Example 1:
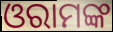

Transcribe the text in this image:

ଓରାମଙ୍କ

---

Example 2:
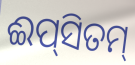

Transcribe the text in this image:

ଈପ୍‌ସିତମ୍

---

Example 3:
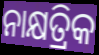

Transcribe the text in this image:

ନାକ୍ଷତ୍ରିକ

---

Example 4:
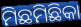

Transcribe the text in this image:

ମିଛମିଛିକା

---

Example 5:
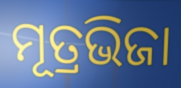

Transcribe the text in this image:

ମୂତ୍ରଭିଜା